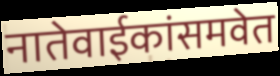
नातेवाईकांसमवेत